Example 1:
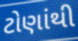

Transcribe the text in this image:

ટોણાંથી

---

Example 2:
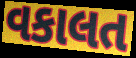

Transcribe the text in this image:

વકાલત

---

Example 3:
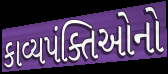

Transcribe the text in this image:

કાવ્યપંક્તિઓનો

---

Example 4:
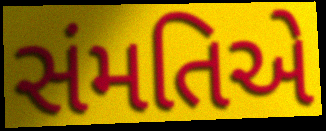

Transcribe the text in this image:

સંમતિએ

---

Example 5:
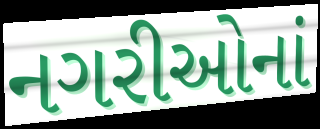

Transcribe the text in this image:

નગરીઓનાં